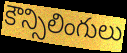
కౌన్సిలింగులు